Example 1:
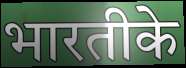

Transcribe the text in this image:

भारतीके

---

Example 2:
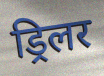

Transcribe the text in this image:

ड्रिलर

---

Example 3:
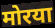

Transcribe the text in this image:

मोरया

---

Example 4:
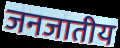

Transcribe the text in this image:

जनजातीय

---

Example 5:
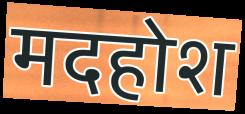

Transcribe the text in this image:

मदहोश